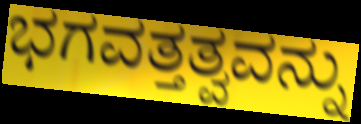
ಭಗವತ್ತತ್ವವನ್ನು